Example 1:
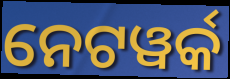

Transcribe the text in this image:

ନେଟୱର୍କ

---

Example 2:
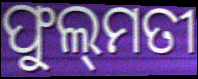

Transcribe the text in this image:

ଫୁଲ୍‍ମତୀ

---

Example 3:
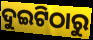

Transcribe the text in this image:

ଦୁଇଟିଠାରୁ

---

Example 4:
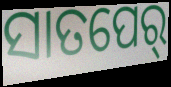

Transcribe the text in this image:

ସାତପେର୍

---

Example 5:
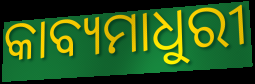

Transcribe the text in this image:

କାବ୍ୟମାଧୁରୀ